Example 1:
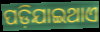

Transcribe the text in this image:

ପଡ଼ିଯାଇଥାଏ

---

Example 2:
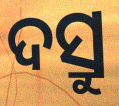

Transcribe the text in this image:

ଦସ୍ରୁ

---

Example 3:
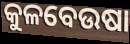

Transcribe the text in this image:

କୁଳବେଉଷା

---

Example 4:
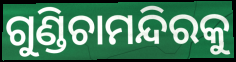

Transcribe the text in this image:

ଗୁଣ୍ଡିଚାମନ୍ଦିରକୁ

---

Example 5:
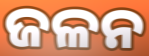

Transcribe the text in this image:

ଜଳନ